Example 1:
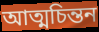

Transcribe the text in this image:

আত্মচিন্তন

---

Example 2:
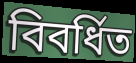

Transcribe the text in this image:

বিবর্ধিত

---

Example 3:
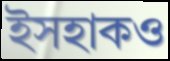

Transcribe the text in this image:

ইসহাকও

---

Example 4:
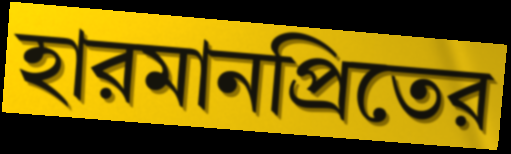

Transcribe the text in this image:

হারমানপ্রিতের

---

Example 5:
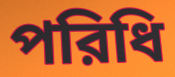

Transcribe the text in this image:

পরিধি